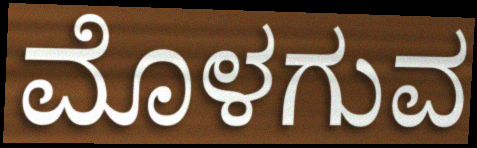
ಮೊಳಗುವ